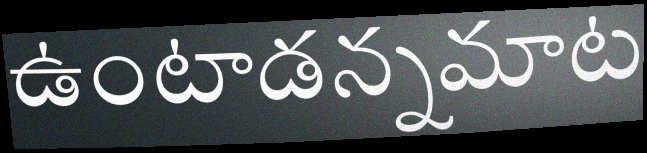
ఉంటాడన్నమాట